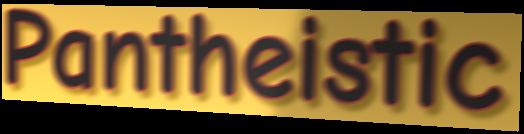
Pantheistic